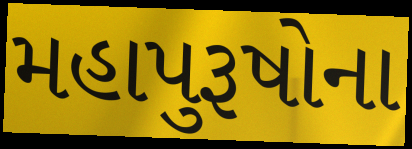
મહાપુરૂષોના